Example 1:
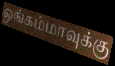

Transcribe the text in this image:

ஒங்கம்மாவுக்கு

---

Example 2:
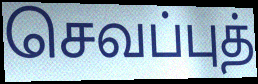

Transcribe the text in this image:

செவப்புத்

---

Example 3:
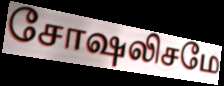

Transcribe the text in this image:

சோஷலிசமே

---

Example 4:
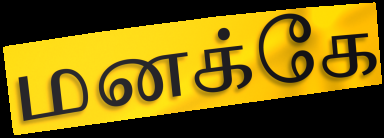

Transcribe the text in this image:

மனக்கே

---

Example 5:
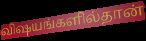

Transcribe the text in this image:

விஷயங்களில்தான்